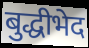
बुद्धीभेद